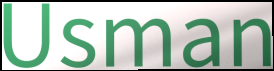
Usman